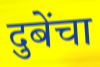
दुबेंचा